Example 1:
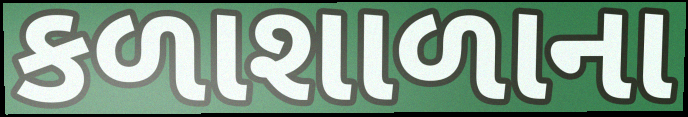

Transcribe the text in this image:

કળાશાળાના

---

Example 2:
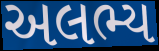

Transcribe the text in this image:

અલભ્ય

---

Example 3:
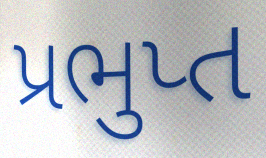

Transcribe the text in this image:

પ્રભુપ્ત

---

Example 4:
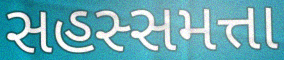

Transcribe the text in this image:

સહસ્સમત્તા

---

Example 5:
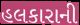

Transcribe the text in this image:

હલકારાની